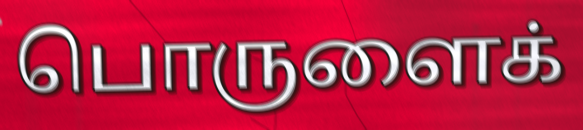
பொருளைக்